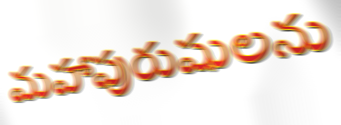
మహాపురుషులను